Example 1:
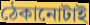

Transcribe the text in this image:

ঠেকানোটাই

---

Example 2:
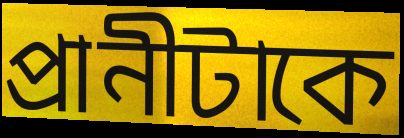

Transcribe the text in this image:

প্রানীটাকে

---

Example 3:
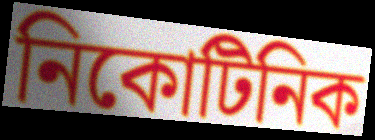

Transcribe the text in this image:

নিকোটিনিক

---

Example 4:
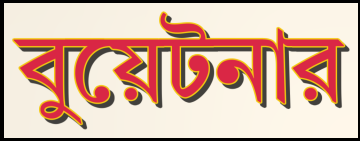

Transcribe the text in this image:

বুয়েটনার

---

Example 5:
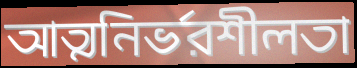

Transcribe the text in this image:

আত্মনির্ভরশীলতা